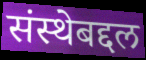
संस्थेबद्दल